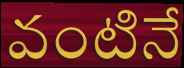
వంటినే